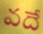
వదే